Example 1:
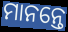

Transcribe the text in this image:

ମାନନ୍ତେ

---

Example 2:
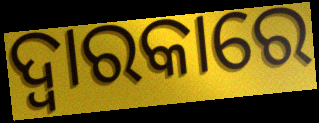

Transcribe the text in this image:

ଦ୍ବାରକାରେ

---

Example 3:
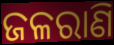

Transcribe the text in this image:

ଜଳରାଣି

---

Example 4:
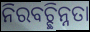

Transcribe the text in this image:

ନିରବଚ୍ଛିନ୍ନତା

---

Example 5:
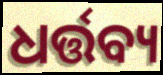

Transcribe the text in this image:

ଧର୍ତ୍ତବ୍ୟ